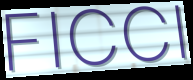
FICCI